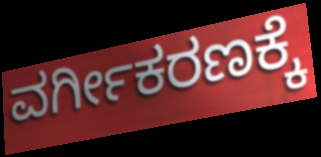
ವರ್ಗೀಕರಣಕ್ಕೆ